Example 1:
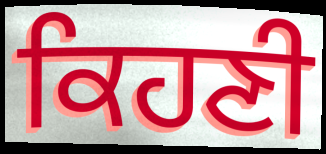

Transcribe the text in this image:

ਕਿਹਣੀ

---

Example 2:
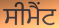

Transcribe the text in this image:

ਸੀਮੈਂਟ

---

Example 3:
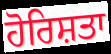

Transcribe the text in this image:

ਹੋਰਿਸ਼ਤਾ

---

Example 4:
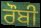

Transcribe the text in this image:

ਰੌਬੀ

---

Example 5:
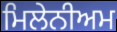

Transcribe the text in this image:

ਮਿਲੇਨੀਅਮ